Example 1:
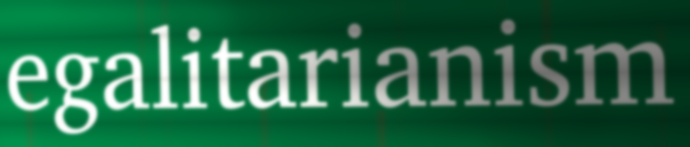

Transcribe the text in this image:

egalitarianism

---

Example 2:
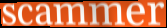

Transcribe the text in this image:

scammer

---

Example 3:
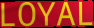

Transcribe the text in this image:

LOYAL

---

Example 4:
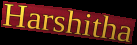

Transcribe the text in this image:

Harshitha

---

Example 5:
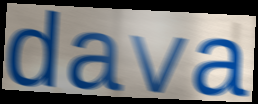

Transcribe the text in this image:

dava